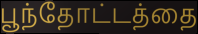
பூந்தோட்டத்தை